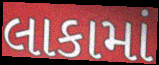
લાકામાં